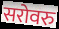
सरोवरु